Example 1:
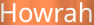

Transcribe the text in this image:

Howrah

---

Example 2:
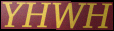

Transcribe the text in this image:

YHWH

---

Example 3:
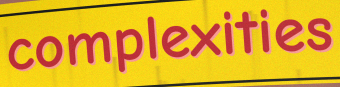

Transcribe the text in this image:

complexities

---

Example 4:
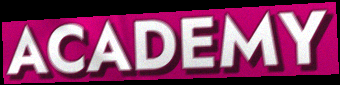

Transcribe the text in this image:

ACADEMY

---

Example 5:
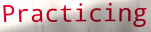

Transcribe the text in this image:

Practicing